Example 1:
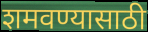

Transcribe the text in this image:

शमवण्यासाठी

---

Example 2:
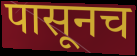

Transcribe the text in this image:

पासूनच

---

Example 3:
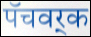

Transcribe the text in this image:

पॅचवर्क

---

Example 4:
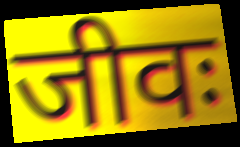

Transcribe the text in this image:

जीवः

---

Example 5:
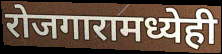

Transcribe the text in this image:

रोजगारामध्येही